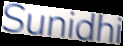
Sunidhi